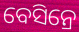
ବେସିନ୍ରେ